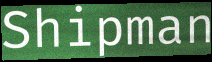
Shipman